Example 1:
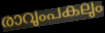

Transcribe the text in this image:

രാവുംപകലും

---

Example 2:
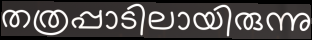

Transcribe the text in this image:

തത്രപ്പാടിലായിരുന്നു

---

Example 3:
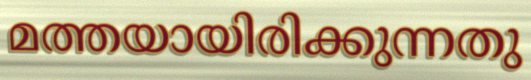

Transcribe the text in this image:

മത്തയായിരിക്കുന്നതു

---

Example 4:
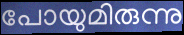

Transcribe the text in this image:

പോയുമിരുന്നു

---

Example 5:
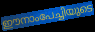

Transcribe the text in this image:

ഈനാംപേച്ചിയുടെ